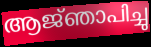
ആജ്‌ഞാപിച്ചു